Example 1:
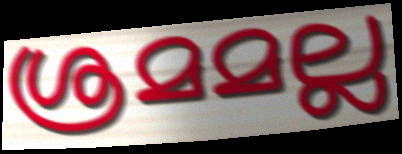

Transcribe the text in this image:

ശ്രമമല്ല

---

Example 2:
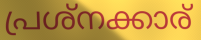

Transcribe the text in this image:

പ്രശ്നക്കാര്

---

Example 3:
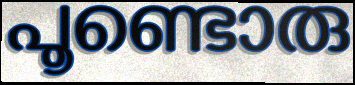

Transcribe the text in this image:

പൂണ്ടൊരു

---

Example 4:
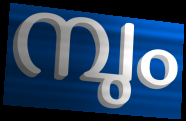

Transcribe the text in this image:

മ്പും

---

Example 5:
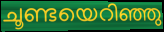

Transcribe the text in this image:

ചൂണ്ടയെറിഞ്ഞു